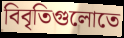
বিবৃতিগুলোতে